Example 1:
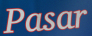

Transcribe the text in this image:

Pasar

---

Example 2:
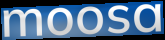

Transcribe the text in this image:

moosa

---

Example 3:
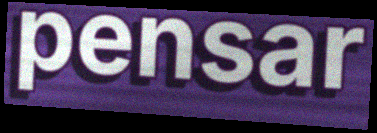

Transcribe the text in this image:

pensar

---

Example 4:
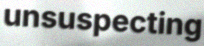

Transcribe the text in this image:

unsuspecting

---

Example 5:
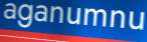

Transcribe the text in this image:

aganumnu